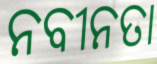
ନବୀନତା